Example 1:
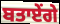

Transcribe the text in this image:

ਬਤਾਏਂਗੇ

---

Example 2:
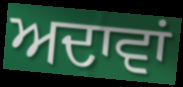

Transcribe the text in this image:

ਅਦਾਵਾਂ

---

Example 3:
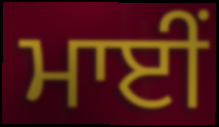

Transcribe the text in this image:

ਮਾਈਂ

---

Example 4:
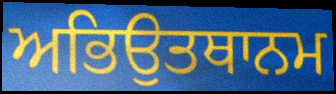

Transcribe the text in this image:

ਅਭਿਉਤਥਾਨਮ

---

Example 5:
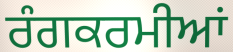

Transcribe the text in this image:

ਰੰਗਕਰਮੀਆਂ